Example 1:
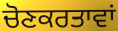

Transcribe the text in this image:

ਚੋਣਕਰਤਾਵਾਂ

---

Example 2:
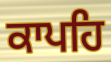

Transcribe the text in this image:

ਕਾਪਹਿ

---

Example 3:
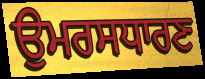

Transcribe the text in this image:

ਉਮਰਸਧਾਰਣ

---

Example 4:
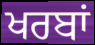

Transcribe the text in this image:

ਖਰਬਾਂ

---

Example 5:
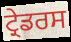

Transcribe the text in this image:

ਟ੍ਰੇਡਰਸ